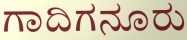
ಗಾದಿಗನೂರು